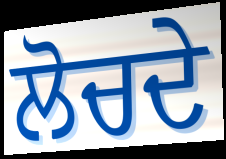
ਲੋਚਦੇ